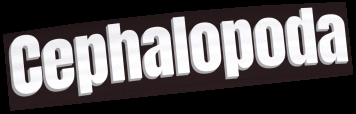
Cephalopoda